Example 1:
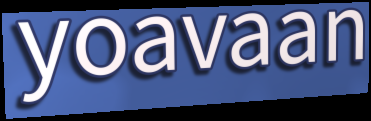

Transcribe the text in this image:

yoavaan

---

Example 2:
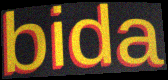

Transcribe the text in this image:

bida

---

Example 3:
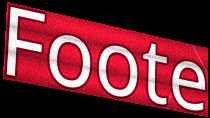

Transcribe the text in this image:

Foote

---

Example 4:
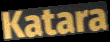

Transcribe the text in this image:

Katara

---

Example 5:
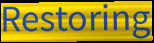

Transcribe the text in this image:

Restoring